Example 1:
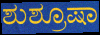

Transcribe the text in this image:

ಶುಶ್ರೂಷಾ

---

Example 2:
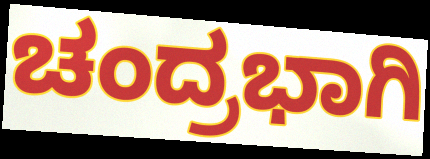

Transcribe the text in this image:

ಚಂದ್ರಭಾಗಿ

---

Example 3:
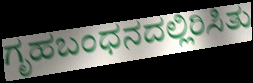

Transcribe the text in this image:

ಗೃಹಬಂಧನದಲ್ಲಿರಿಸಿತು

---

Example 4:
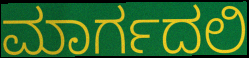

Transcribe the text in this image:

ಮಾರ್ಗದಲಿ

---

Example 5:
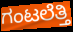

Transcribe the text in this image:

ಗಂಟಲೆತ್ತಿ